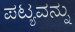
ಪಟ್ಯವನ್ನು